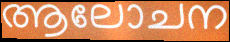
ആലോചന